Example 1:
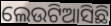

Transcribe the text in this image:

ଲେଉଟିଆସିଛି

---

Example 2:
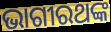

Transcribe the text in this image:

ଭାଗୀରଥଙ୍କ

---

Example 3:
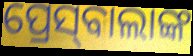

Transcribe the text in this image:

ପ୍ରେସ୍‌ବାଲାଙ୍କ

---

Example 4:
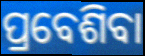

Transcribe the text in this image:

ପ୍ରବେଶିବା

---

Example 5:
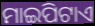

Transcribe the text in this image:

ମାଇପିଟାଏ